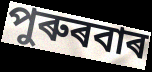
পুৰুৰবাৰ